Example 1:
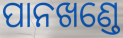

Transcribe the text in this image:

ପାନଖଣ୍ଡେ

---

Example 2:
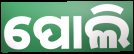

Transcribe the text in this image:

ପୋଲି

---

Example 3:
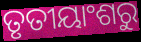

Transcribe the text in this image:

ତୃତୀୟାଂଶରୁ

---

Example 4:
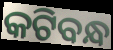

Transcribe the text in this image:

କଟିବନ୍ଧ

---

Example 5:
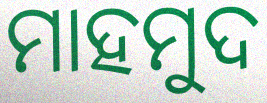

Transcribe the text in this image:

ମାହମୁଦ